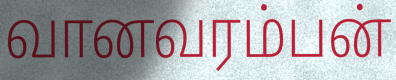
வானவரம்பன்